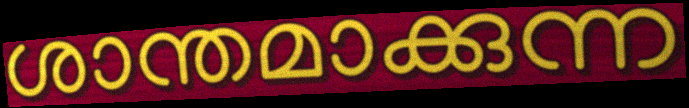
ശാന്തമാക്കുന്ന